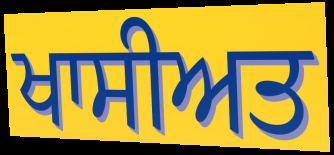
ਖਾਸੀਅਤ